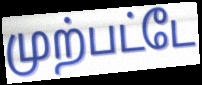
முற்பட்டே